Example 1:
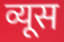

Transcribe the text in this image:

व्यूस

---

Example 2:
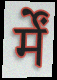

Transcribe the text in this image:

र्में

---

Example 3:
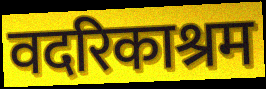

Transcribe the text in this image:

वदरिकाश्रम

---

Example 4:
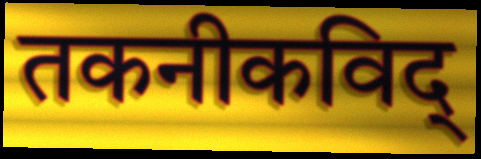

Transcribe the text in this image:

तकनीकविद्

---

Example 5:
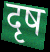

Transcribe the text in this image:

दृष